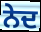
ਨੇਦ